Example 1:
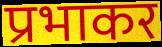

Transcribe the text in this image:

प्रभाकर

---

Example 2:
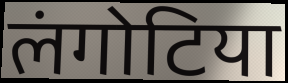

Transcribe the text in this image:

लंगोटिया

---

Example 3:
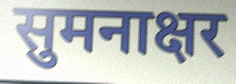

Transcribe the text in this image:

सुमनाक्षर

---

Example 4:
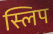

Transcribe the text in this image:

स्लिप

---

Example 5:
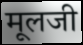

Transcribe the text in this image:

मूलजी